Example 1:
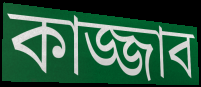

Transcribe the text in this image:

কাজ্জাব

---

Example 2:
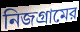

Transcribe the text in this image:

নিজগ্রামের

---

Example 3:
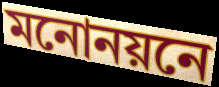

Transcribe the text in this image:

মনোনয়নে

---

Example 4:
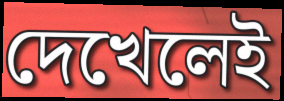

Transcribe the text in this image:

দেখেলেই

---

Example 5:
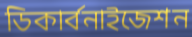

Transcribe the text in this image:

ডিকার্বনাইজেশন